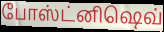
போஸ்ட்னிஷெவ்